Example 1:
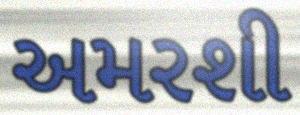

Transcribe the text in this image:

અમરશી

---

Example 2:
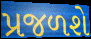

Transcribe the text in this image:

પ્રજળશે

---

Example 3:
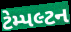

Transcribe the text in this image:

ટેમ્પલ્ટન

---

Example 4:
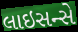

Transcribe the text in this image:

લાઇસન્સે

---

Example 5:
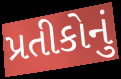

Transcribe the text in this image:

પ્રતીકોનું